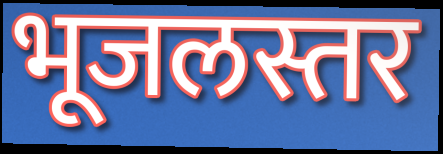
भूजलस्तर